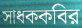
সাধককবির